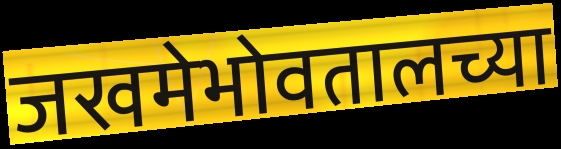
जखमेभोवतालच्या